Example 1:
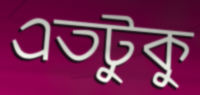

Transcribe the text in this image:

এতটুকু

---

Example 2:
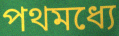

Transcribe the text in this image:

পথমধ্যে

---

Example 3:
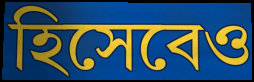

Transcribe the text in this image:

হিসেবেও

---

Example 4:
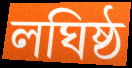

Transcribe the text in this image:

লঘিষ্ঠ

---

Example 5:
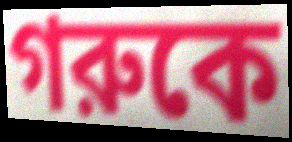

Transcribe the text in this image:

গরুকে